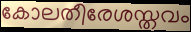
കോലതീരേശസ്തവം